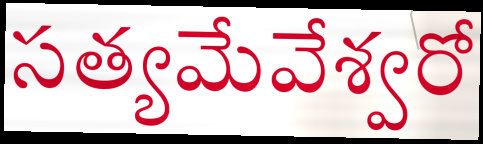
సత్యమేవేశ్వరో